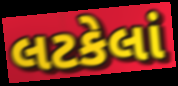
લટકેલાં